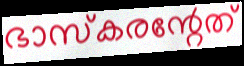
ഭാസ്കരന്റേത്